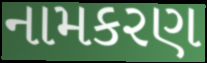
નામકરણ